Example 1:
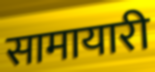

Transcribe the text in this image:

सामायारी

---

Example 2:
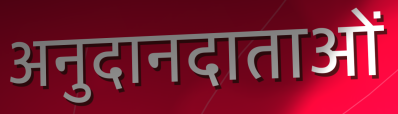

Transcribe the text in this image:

अनुदानदाताओं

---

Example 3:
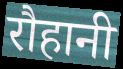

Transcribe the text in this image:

रौहानी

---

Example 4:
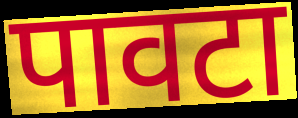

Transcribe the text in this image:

पावटा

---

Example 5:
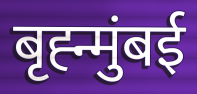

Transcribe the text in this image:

बृह्न्मुंबई